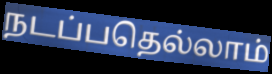
நடப்பதெல்லாம்